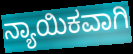
ನ್ಯಾಯಿಕವಾಗಿ